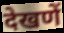
देखणें